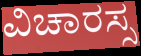
ವಿಚಾರಸ್ಸ